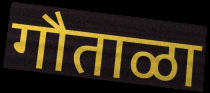
गौताळा